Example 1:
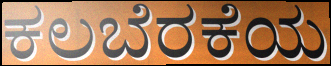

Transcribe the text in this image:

ಕಲಬೆರಕೆಯ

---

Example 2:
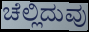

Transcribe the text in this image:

ಚೆಲ್ಲಿದುವು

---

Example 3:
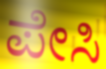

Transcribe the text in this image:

ಪೇಸಿ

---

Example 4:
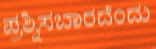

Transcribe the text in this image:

ಪ್ರಶ್ನಿಸಬಾರದೆಂದು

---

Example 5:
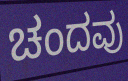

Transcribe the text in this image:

ಚಂದವು